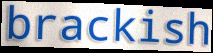
brackish